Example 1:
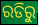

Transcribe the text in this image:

ରଡିରୁ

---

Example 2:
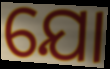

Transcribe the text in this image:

ଯୋ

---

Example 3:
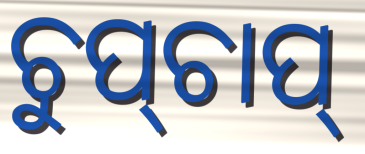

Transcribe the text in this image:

ଚୁପ୍‌ଚାପ୍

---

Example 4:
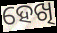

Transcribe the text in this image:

ହେଖି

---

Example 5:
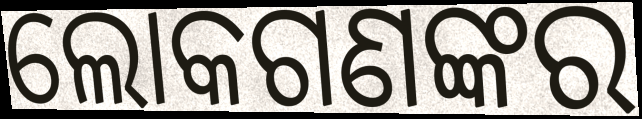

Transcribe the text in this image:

ଲୋକଗଣଙ୍କର